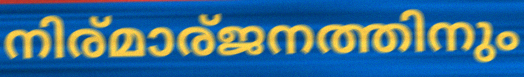
നിര്മാര്ജനത്തിനും